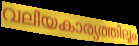
വലിയകാര്യത്തിലും